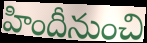
హిందీనుంచి